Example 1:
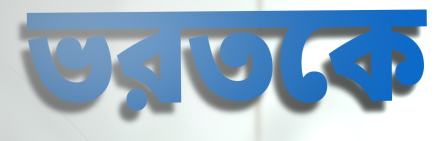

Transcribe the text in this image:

ভরতকে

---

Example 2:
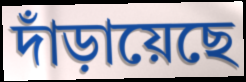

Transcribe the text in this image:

দাঁড়ায়েছে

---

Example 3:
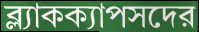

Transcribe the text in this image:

ব্ল্যাকক্যাপসদের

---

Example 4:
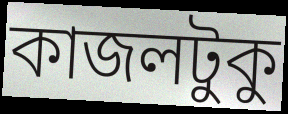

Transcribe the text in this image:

কাজলটুকু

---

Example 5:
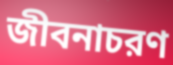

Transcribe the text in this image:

জীবনাচরণ